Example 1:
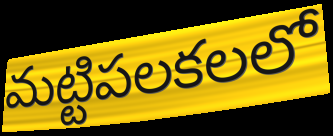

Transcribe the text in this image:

మట్టిపలకలలో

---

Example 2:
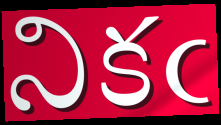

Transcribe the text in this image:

నికఁ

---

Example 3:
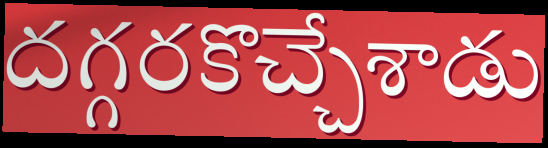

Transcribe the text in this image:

దగ్గరకొచ్చేశాడు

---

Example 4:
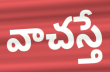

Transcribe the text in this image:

వాచస్తే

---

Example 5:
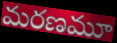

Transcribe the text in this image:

మరణమూ